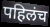
पहिलंच